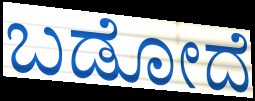
ಬಡೋದೆ